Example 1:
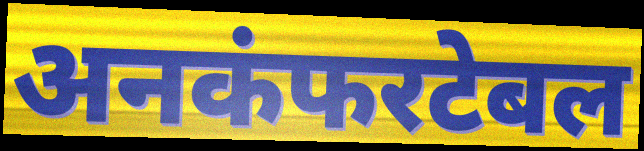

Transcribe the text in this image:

अनकंफरटेबल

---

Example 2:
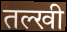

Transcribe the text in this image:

तल्‍खी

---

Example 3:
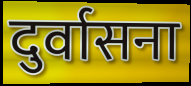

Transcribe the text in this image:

दुर्वासना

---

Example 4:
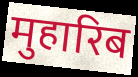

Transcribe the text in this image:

मुहारिब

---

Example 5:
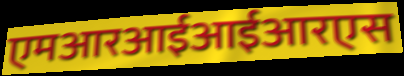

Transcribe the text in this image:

एमआरआईआईआरएस